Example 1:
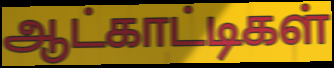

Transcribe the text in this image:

ஆட்காட்டிகள்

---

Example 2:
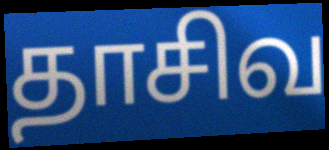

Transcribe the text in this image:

தாசிவ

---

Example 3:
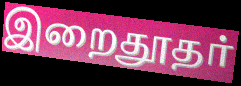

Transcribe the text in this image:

இறைதூதர்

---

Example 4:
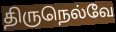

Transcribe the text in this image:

திருநெல்வே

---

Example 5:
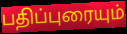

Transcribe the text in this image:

பதிப்புரையும்